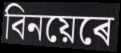
বিনয়েৰে